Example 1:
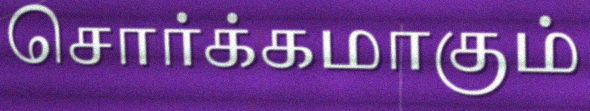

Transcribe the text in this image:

சொர்க்கமாகும்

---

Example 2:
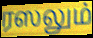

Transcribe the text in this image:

ரஸலும்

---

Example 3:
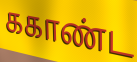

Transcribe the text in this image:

ககாண்ட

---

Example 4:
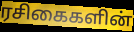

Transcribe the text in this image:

ரசிகைகளின்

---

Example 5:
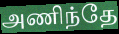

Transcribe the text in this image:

அணிந்தே